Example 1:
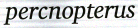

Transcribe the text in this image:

percnopterus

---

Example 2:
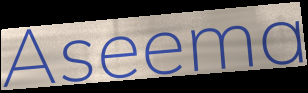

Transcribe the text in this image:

Aseema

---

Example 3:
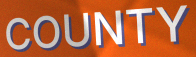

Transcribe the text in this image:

COUNTY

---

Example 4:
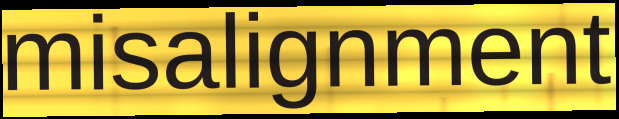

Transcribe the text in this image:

misalignment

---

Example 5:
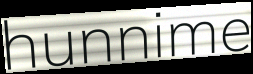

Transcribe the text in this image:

hunnime